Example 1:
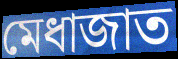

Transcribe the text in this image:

মেধাজাত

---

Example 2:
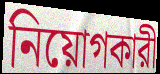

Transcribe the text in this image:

নিয়োগকারী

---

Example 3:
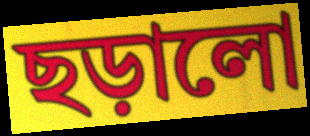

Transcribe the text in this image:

ছড়ালো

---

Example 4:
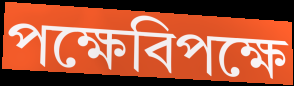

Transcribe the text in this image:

পক্ষেবিপক্ষে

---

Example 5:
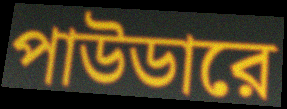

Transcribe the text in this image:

পাউডারে